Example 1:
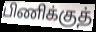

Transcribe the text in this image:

பிணிக்குத்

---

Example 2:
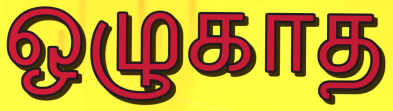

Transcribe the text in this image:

ஒழுகாத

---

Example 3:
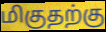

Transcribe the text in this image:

மிகுதற்கு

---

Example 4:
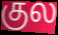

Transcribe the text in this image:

குல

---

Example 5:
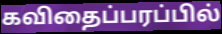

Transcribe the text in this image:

கவிதைப்பரப்பில்